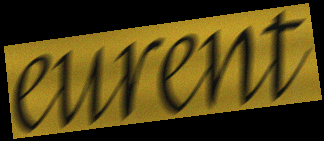
eurent